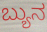
ಬ್ಯುನ